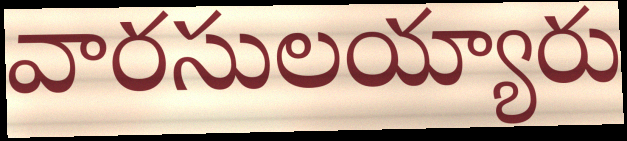
వారసులయ్యారు